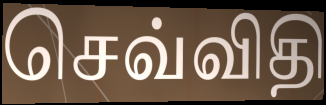
செவ்விதி